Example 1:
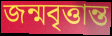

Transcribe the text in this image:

জন্মবৃত্তান্ত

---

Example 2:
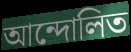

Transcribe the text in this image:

আন্দোলিত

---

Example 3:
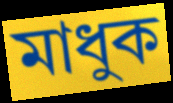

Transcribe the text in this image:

মাধুক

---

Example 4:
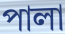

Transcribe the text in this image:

পালা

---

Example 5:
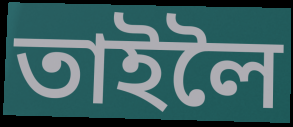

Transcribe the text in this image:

তাইলৈ